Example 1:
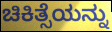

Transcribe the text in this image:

ಚಿಕಿತ್ಸೆಯನ್ನು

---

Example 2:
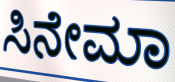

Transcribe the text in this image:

ಸಿನೇಮಾ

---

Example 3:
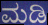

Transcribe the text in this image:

ಮಡಿ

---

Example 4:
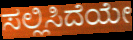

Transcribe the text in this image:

ಸಲ್ಲಿಸಿದೆಯೇ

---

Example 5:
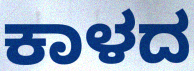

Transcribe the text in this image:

ಕಾಳದ